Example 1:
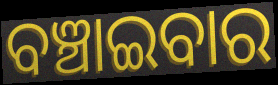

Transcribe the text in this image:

ବଞ୍ଚାଇବାର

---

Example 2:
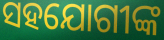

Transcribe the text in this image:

ସହଯୋଗୀଙ୍କ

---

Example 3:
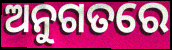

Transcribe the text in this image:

ଅନୁଗତରେ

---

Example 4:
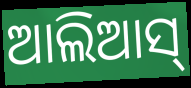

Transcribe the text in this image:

ଆଲିଆସ୍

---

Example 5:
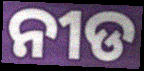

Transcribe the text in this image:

ନୀଡ